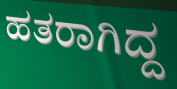
ಹತರಾಗಿದ್ದ